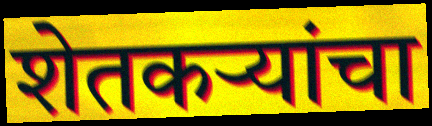
शेतकर्‍यांचा